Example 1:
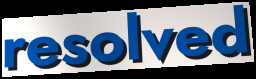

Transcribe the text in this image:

resolved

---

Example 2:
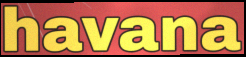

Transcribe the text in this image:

havana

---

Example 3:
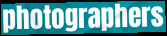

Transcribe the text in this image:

photographers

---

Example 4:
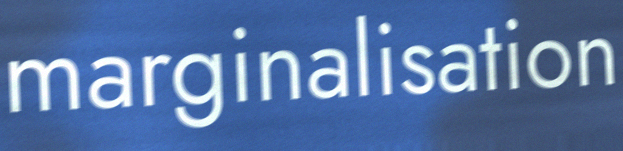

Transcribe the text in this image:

marginalisation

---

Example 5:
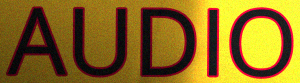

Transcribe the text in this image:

AUDIO